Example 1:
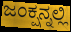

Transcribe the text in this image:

ಜಂಕ್ಷನ್ನಲ್ಲಿ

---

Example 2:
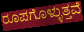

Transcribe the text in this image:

ರೂಪಗೊಳ್ಳುತ್ತವೆ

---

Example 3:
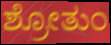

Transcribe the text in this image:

ಶ್ರೋತುಂ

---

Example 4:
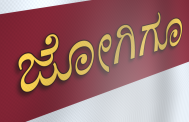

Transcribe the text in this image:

ಜೋಗಿಗೂ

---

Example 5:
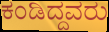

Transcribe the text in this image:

ಕಂಡಿದ್ದವರು